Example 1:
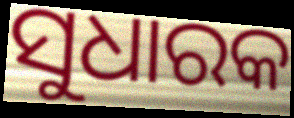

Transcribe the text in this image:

ସୁଧାରକ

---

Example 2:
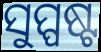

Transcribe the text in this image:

ସୁପ୍ପଷ୍ଟ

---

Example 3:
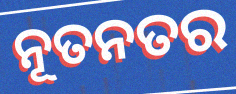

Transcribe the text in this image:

ନୂତନତର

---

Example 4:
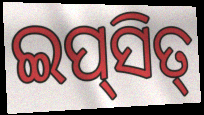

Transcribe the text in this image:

ଇପ୍‌ସିତ୍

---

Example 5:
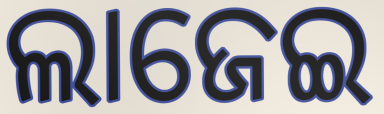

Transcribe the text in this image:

ଲାଜେଇ